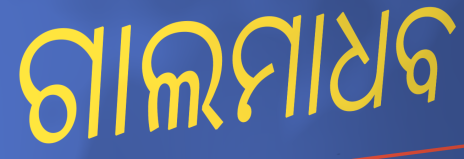
ଗାଲମାଧବ